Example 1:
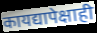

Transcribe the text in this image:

कायद्यापेक्षाही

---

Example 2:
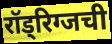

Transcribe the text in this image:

रॉड्रिग्जची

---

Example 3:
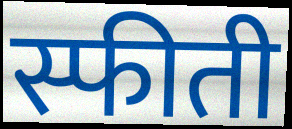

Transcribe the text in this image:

स्फीती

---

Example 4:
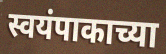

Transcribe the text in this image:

स्वयंपाकाच्या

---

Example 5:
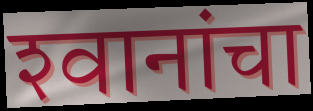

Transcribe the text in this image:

श्वानांचा